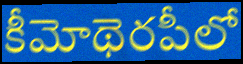
కీమోథెరపీలో